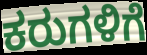
ಕರುಗಳಿಗೆ